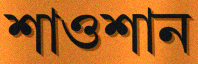
শাওশান